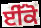
ਈੱਕੋ